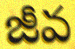
జీవ